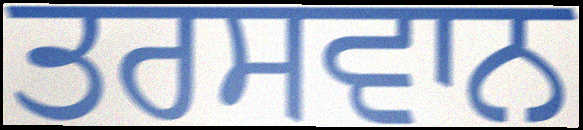
ਤਰਸਵਾਨ